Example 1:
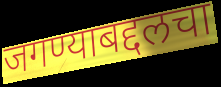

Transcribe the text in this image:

जगण्याबद्दलचा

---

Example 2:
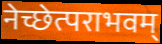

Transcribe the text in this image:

नेच्छेत्पराभवम्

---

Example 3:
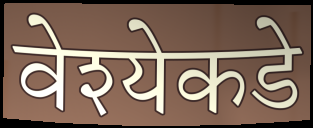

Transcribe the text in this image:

वेश्येकडे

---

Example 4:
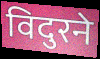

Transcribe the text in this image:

विदुरने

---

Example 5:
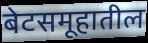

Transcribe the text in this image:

बेटसमूहातील